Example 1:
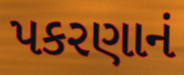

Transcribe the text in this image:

પકરણાનં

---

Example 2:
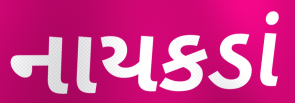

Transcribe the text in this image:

નાયકડાં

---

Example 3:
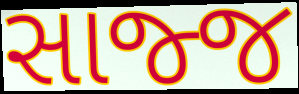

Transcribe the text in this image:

સાજ્જ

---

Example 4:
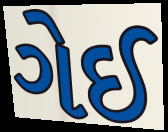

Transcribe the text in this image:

ગેઈ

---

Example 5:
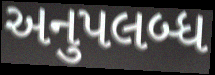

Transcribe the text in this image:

અનુપલબ્ધ